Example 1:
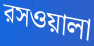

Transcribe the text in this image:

রসওয়ালা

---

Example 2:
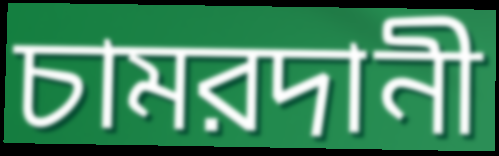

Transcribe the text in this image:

চামরদানী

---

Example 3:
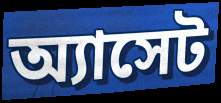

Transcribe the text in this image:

অ্যাসেট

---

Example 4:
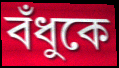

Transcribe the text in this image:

বঁধুকে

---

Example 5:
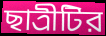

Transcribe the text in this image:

ছাত্রীটির